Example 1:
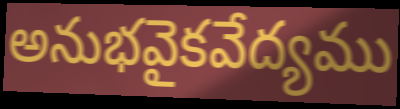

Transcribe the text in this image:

అనుభవైకవేద్యము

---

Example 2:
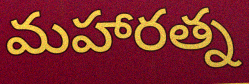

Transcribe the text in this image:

మహారత్న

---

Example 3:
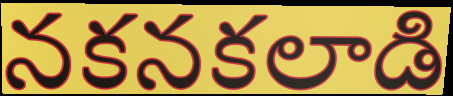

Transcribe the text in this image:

నకనకలాడి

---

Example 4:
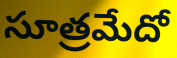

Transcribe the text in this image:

సూత్రమేదో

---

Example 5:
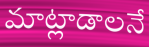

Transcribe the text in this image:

మాట్లాడాలనే